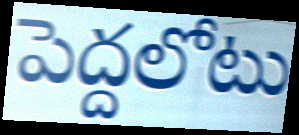
పెద్దలోటు